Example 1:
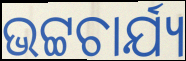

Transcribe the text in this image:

ଭଟ୍ଟଚାର୍ଯ୍ୟ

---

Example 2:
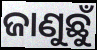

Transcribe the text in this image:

ଜାଣୁଛୁଁ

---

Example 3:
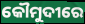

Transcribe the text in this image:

କୌମୁଦୀରେ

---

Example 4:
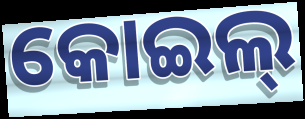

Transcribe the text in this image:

କୋଇଲ୍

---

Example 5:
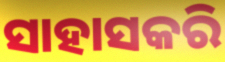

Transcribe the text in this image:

ସାହାସକରି